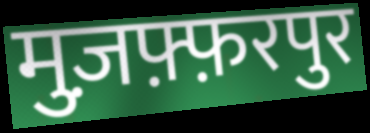
मुज़फ़्फ़रपुर